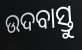
ଉଦବାସ୍ତୁ